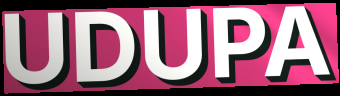
UDUPA